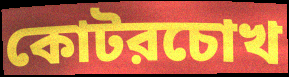
কোটরচোখ